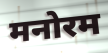
मनोरम